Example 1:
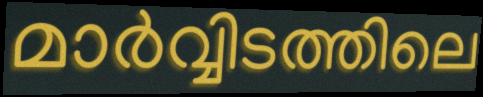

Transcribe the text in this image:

മാർവ്വിടത്തിലെ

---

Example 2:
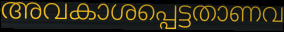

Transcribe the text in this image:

അവകാശപ്പെട്ടതാണവ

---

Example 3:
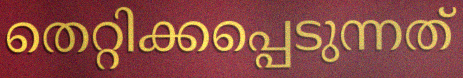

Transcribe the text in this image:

തെറ്റിക്കപ്പെടുന്നത്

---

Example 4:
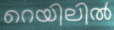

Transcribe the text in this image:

റെയിലിൽ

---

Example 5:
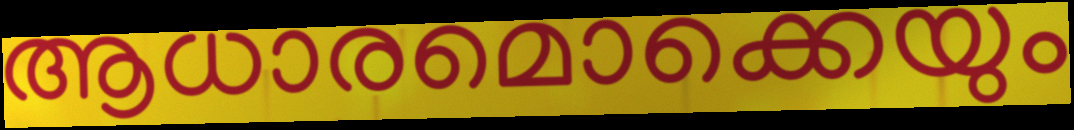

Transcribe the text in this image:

ആധാരമൊക്കെയും